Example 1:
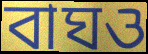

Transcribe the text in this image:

বাঘও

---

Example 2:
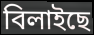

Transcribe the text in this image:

বিলাইছে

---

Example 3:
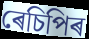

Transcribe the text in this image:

ৰেচিপিৰ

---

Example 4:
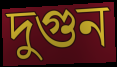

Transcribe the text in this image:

দুগুন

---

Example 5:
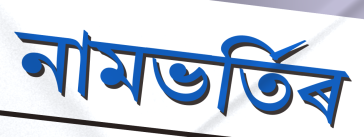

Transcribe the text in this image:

নামভৰ্তিৰ